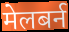
मेलबर्न